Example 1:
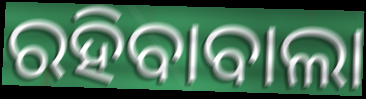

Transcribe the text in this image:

ରହିବାବାଲା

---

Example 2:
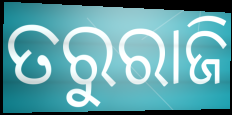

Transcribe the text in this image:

ତରୁରାଜି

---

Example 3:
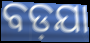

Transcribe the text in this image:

ବଡ଼ଯା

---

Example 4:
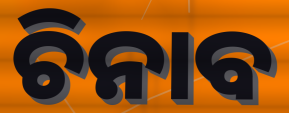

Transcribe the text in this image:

ଚିନାବ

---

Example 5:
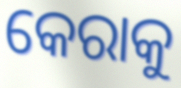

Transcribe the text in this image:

କେରାକୁ